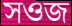
সওজ